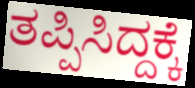
ತಪ್ಪಿಸಿದ್ದಕ್ಕೆ